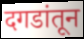
दगडांतून